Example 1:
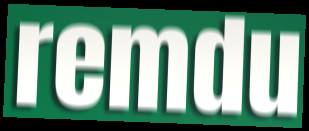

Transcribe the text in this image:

remdu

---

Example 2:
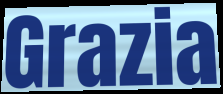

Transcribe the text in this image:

Grazia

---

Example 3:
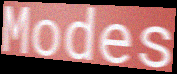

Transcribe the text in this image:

Modes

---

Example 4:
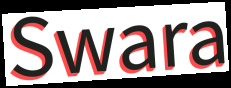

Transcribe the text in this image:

Swara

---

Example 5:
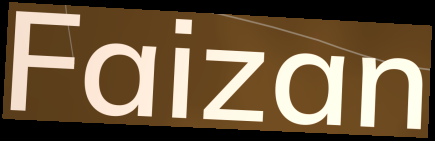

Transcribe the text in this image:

Faizan